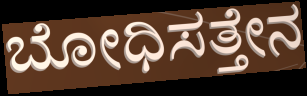
ಬೋಧಿಸತ್ತೇನ